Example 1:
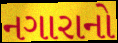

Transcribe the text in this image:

નગારાનો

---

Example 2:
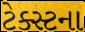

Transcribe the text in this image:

ટેક્સ્ટના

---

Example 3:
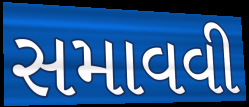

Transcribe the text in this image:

સમાવવી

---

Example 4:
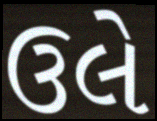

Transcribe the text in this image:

ઉલે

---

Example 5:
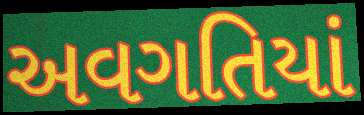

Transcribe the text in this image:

અવગતિયાં